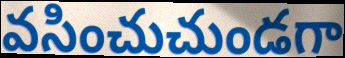
వసించుచుండగా